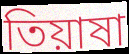
তিয়াষা